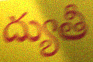
ద్యుతీ